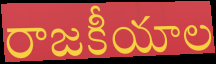
రాజకీయాల